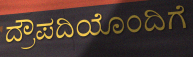
ದ್ರೌಪದಿಯೊಂದಿಗೆ